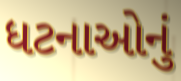
ધટનાઓનું